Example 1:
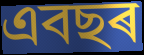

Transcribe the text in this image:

এবছৰ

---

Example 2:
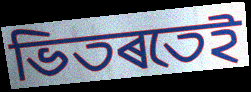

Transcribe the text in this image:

ভিতৰতেই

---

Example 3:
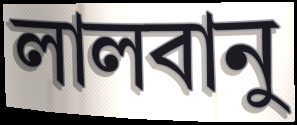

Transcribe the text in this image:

লালবানু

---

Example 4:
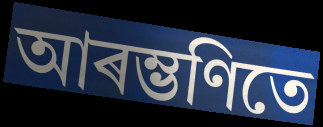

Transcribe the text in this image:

আৰম্ভণিতে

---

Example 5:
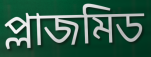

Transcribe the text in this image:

প্লাজমিড